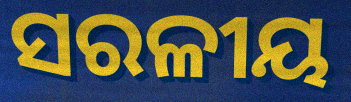
ସରଳୀୟ